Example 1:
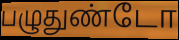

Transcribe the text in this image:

பழுதுண்டோ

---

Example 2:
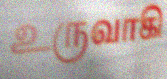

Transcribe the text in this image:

உருவாகி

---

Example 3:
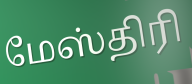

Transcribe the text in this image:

மேஸ்திரி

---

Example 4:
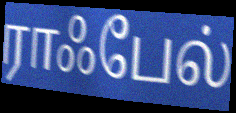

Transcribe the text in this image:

ராஃபேல்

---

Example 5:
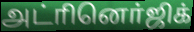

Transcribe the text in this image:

அட்ரினெர்ஜிக்